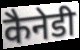
कैनेडी